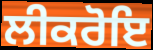
ਲੀਕਰੋਇ